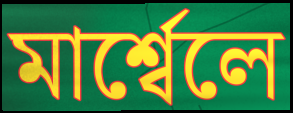
মাৰ্শ্বেলে